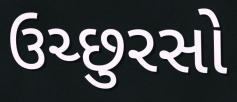
ઉચ્છુરસો